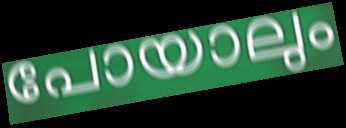
പോയാലും